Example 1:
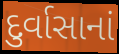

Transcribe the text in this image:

દુર્વાસાનાં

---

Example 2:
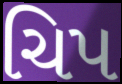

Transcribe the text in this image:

ચિપ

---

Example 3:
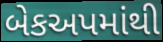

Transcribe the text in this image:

બેકઅપમાંથી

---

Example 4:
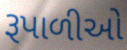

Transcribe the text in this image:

રૂપાળીઓ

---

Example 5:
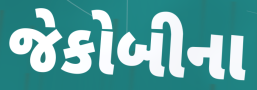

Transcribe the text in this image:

જેકોબીના